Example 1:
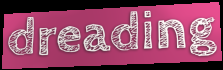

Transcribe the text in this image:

dreading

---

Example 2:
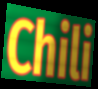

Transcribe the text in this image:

Chili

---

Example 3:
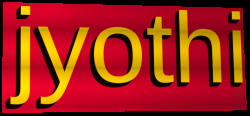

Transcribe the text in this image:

jyothi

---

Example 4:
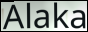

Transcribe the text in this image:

Alaka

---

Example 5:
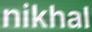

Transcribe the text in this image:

nikhal